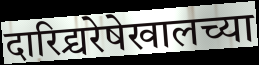
दारिद्र्यरेषेखालच्या